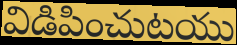
విడిపించుటయు